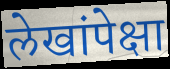
लेखांपेक्षा